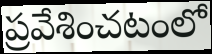
ప్రవేశించటంలో